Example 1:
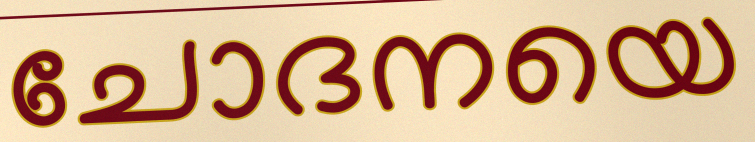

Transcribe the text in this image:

ചോദനയെ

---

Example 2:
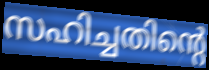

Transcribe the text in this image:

സഹിച്ചതിന്റെ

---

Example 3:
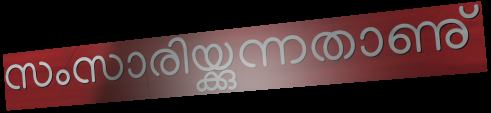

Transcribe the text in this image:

സംസാരിയ്ക്കുന്നതാണു്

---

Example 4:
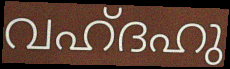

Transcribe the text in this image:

വഹ്ദഹു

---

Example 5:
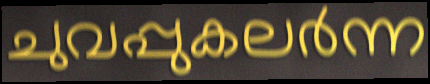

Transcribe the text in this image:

ചുവപ്പുകലർന്ന